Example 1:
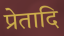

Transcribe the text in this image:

प्रेतादि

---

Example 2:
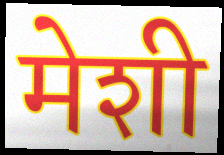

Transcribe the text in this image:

मेशी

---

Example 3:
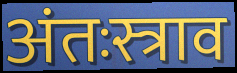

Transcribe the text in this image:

अंतःस्त्राव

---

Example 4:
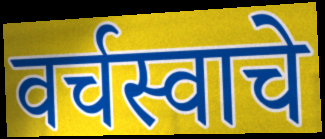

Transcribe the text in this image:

वर्चस्वाचे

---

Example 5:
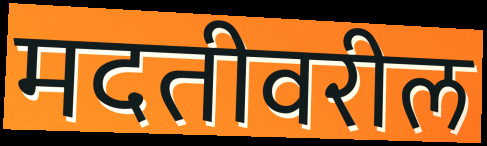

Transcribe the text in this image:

मदतीवरील